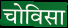
चोविसा